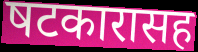
षटकारासह